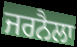
ਜਰਨੈਲਾ